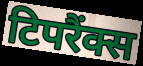
टिपरैंक्स